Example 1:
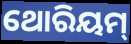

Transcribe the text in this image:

ଥୋରିୟମ୍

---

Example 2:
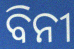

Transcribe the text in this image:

ବିନୀ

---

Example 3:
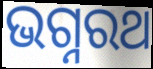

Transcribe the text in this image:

ଭଗ୍ନରଥ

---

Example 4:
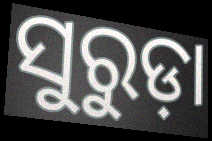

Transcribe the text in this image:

ସୁରୁଡ଼ା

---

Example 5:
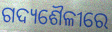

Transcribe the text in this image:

ଗଦ୍ୟଶୈଳୀରେ